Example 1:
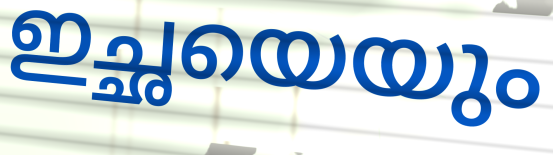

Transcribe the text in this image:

ഇച്ഛയെയും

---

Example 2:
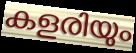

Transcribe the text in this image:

കളരിയും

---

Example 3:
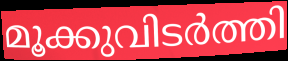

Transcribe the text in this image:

മൂക്കുവിടർത്തി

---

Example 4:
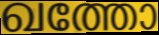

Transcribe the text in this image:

ഖത്തോ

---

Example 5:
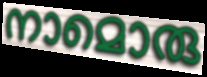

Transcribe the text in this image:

നാമൊരു